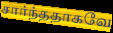
சார்ந்ததாகவே